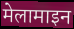
मेलामाइन